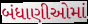
બંધાણીઓમાં